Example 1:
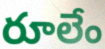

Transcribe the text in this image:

రూలేం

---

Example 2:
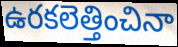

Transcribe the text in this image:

ఉరకలెత్తించినా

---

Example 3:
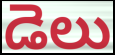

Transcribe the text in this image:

డెలు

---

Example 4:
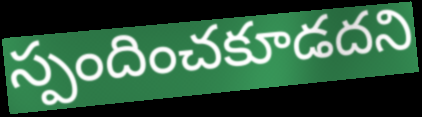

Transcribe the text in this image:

స్పందించకూడదని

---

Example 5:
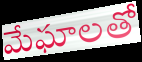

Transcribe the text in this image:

మేఘాలతో